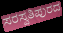
ಸರಸ್ವತಿಪುರದ